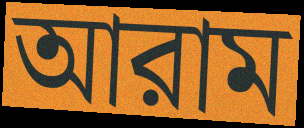
আরাম